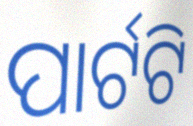
ପାର୍ଟଟି